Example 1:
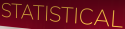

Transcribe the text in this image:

STATISTICAL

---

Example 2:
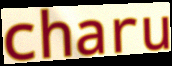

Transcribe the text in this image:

charu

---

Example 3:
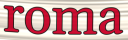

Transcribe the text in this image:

roma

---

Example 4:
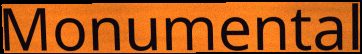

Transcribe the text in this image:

Monumental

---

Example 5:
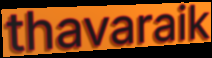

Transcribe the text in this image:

thavaraik